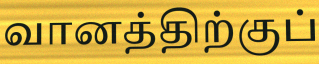
வானத்திற்குப்